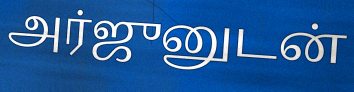
அர்ஜுனுடன்